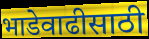
भाडेवाढीसाठी